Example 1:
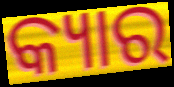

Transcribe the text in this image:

କ୍ୟାର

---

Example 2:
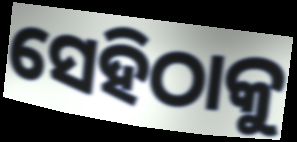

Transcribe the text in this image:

ସେହିଠାକୁ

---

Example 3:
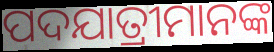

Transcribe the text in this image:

ପଦଯାତ୍ରୀମାନଙ୍କ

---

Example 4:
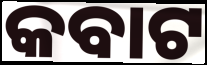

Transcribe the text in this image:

କବାଟ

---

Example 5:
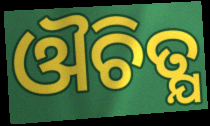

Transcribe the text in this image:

ଔଚିତ୍ଯ